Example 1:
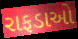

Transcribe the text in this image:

રાફડાઓ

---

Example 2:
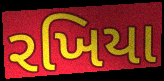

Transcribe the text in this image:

રખિયા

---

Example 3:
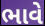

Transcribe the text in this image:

ભાવે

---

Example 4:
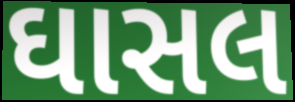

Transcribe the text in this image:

ઘાસલ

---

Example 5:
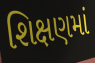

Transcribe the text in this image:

શિક્ષણમાં